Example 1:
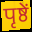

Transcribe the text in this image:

पृष्ठें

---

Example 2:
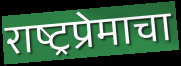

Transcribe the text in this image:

राष्ट्रप्रेमाचा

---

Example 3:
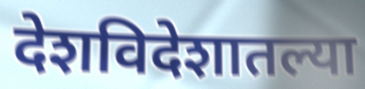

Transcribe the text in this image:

देशविदेशातल्या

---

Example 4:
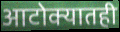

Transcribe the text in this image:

आटोक्यातही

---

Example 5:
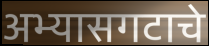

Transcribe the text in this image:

अभ्यासगटाचे